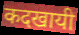
कदखायी